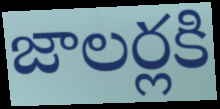
జాలర్లకి